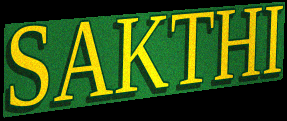
SAKTHI